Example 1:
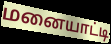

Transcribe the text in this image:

மனையாட்டி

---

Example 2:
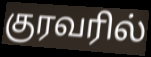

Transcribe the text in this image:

குரவரில்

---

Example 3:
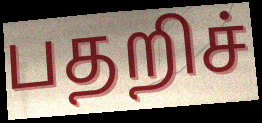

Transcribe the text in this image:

பதறிச்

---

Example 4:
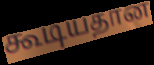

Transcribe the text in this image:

கூடியதான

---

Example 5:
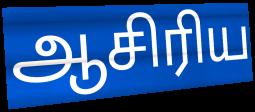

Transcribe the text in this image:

ஆசிரிய